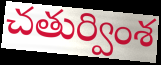
చతుర్వింశ